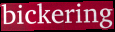
bickering